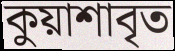
কুয়াশাবৃত